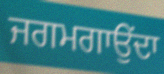
ਜਗਮਗਾਉਂਦਾ